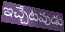
ఇచ్చేటపుడు